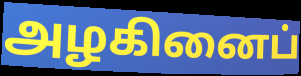
அழகினைப்